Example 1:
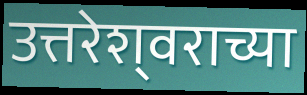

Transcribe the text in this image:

उत्तरेश्वराच्या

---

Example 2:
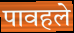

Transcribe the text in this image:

पावहले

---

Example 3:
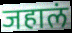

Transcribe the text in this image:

जहालं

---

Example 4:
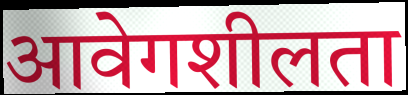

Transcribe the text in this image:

आवेगशीलता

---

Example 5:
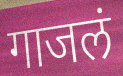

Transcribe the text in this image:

गाजलं